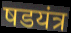
षडयंत्र